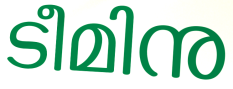
ടീമിനു